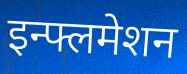
इन्फ्लमेशन